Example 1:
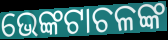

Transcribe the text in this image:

ଭେଙ୍କଟାଚଳଙ୍କ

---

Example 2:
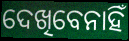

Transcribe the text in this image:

ଦେଖିବେନାହିଁ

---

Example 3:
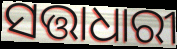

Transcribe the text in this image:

ସତ୍ତାଧାରୀ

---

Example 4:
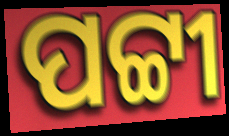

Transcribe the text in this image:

ପଟ୍ଟୀ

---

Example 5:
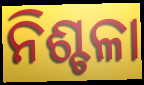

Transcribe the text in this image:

ନିଶ୍ଚଳା